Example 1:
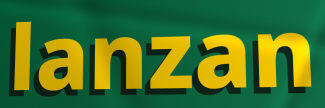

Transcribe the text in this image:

lanzan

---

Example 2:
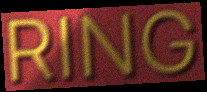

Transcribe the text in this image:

RING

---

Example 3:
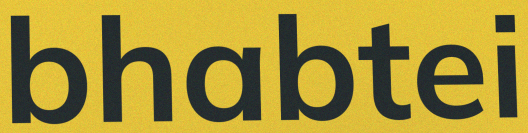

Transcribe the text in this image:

bhabtei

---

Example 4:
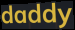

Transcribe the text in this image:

daddy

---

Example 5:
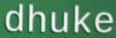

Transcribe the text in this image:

dhuke